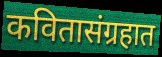
कवितासंग्रहात